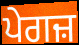
ਪੇਗਜ਼